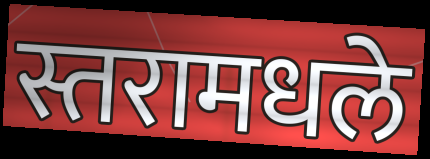
स्तरामधले